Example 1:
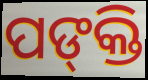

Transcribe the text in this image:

ପଙ୍‍କ୍ତି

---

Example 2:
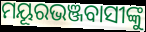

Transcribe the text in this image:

ମୟୂରଭଞ୍ଜବାସୀଙ୍କୁ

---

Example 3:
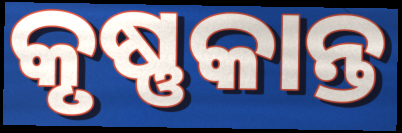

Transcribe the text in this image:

କୃଷ୍ଣକାନ୍ତ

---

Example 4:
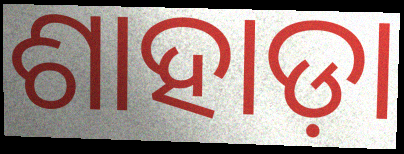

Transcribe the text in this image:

ଶାହାଡ଼ା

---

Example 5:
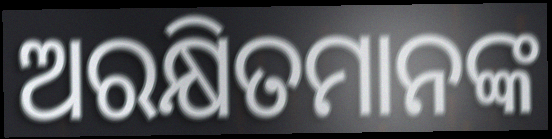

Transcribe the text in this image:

ଅରକ୍ଷିତମାନଙ୍କ